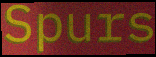
Spurs